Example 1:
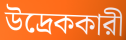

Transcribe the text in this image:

উদ্রেককারী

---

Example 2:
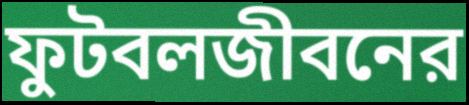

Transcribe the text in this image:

ফুটবলজীবনের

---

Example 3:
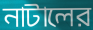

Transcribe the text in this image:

নাটালের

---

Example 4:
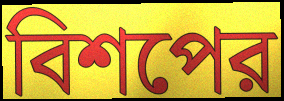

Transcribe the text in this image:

বিশপের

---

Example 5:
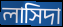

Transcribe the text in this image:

লাসিদা